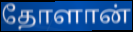
தோளான்